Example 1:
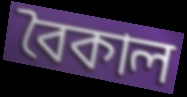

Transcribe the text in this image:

বৈকাল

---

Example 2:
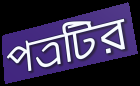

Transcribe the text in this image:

পত্রটির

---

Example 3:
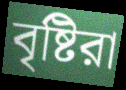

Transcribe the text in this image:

বৃষ্টিরা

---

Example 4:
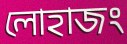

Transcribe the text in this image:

লোহাজং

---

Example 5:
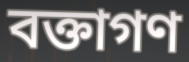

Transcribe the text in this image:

বক্তাগণ